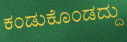
ಕಂಡುಕೊಂಡದ್ದು